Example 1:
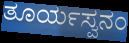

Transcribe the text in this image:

ತೂರ್ಯಸ್ವನಂ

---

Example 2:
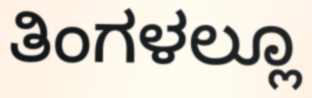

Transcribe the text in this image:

ತಿಂಗಳಲ್ಲೂ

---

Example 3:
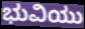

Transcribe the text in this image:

ಭುವಿಯು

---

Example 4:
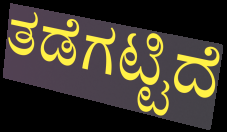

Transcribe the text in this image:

ತಡೆಗಟ್ಟಿದೆ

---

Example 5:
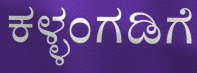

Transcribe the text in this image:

ಕಳ್ಳಂಗಡಿಗೆ